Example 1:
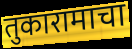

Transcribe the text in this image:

तुकारामाचा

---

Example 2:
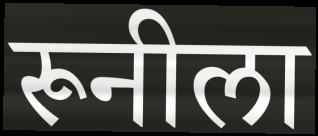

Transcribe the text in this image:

रूनीला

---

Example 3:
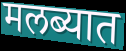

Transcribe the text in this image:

मलब्यात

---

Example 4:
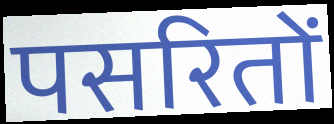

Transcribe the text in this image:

पसरितों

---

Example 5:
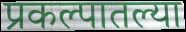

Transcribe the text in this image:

प्रकल्पातल्या